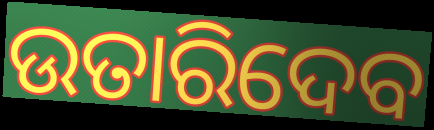
ଉତାରିଦେବ